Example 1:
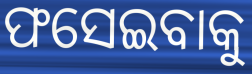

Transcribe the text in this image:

ଫସେଇବାକୁ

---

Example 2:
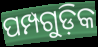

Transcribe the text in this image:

ପମ୍ପଗୁଡ଼ିକ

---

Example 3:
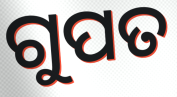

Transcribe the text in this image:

ଗୁପତ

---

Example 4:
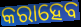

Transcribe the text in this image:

କରାହେବ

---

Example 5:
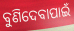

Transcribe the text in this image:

ବୁଣିଦେବାପାଇଁ